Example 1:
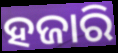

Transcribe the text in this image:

ହଜାରି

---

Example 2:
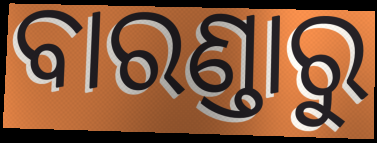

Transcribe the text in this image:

ବାରଣ୍ଡାରୁ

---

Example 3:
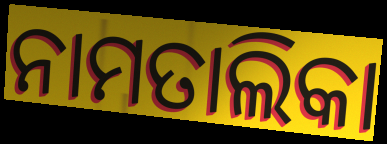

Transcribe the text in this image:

ନାମତାଲିକା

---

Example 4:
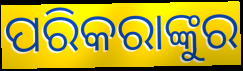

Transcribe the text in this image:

ପରିକରାଙ୍କୁର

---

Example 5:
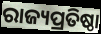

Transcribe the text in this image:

ରାଜ୍ୟପ୍ରତିଷ୍ଠା